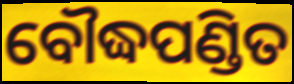
ବୌଦ୍ଧପଣ୍ଡିତ